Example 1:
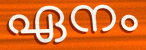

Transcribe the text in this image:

ഏനം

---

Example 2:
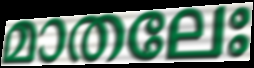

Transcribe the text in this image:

മാതലേഃ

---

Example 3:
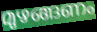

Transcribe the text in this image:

മുഴങ്ങണം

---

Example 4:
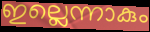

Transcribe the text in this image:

ഇല്ലെന്നാകും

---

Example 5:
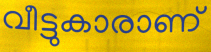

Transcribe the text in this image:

വീട്ടുകാരാണ്